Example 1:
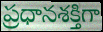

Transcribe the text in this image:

ప్రధానశక్తిగా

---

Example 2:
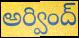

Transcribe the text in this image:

అర్వింద్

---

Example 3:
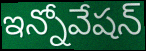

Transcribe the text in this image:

ఇన్నోవేషన్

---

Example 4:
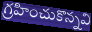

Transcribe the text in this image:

గ్రహించుకొన్నవి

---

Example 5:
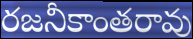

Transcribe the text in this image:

రజనీకాంతరావు